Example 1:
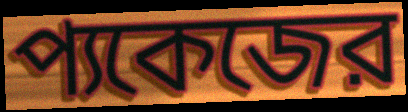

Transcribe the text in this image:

প্যকেজের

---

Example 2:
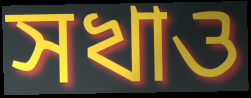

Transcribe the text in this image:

সখাও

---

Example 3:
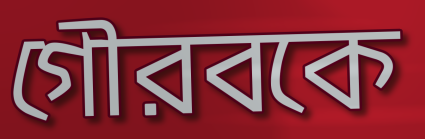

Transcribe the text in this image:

গৌরবকে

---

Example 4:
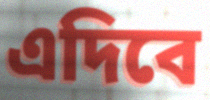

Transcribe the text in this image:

এদিবে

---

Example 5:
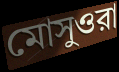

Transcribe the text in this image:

মোসুওরা